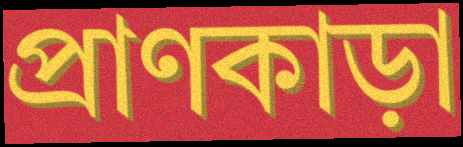
প্রাণকাড়া